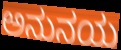
ಅನುನಯ